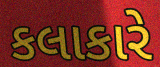
કલાકારે